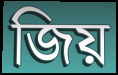
জিয়